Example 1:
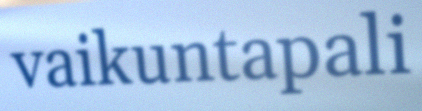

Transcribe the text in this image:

vaikuntapali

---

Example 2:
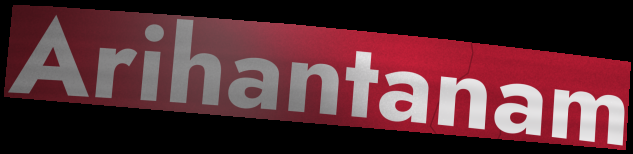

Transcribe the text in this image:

Arihantanam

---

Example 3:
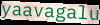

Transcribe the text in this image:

yaavagalu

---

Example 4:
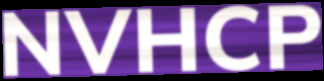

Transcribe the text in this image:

NVHCP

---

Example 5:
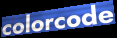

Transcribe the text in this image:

colorcode